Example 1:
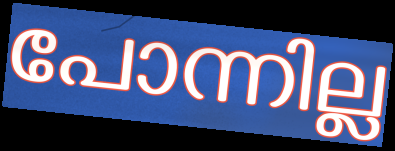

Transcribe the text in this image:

പോന്നില്ല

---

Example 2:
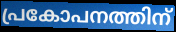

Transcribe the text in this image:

പ്രകോപനത്തിന്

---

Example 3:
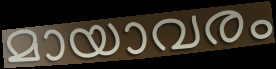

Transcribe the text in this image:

മായാവരം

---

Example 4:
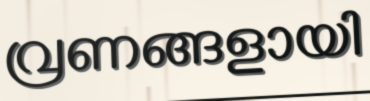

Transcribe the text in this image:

വ്രണങ്ങളായി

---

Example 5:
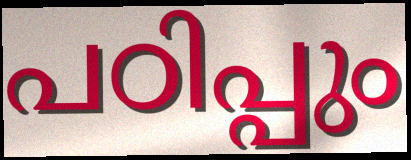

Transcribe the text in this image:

പഠിപ്പും